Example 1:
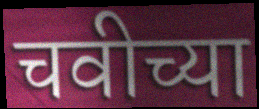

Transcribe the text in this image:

चवीच्या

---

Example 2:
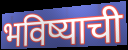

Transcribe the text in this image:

भविष्याची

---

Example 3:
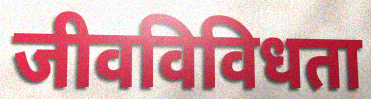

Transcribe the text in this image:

जीवविविधता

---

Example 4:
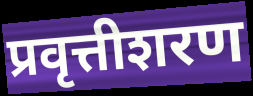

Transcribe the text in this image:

प्रवृत्तीशरण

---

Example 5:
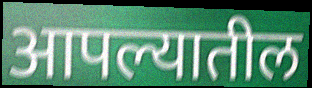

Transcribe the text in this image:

आपल्यातील